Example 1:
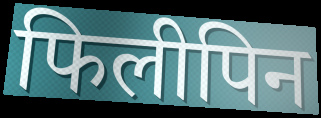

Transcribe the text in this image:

फिलीपिन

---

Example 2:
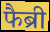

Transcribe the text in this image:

फैब्री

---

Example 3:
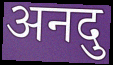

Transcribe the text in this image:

अनदु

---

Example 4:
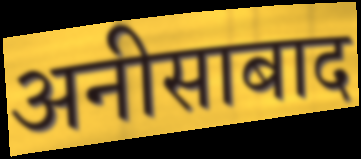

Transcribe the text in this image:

अनीसाबाद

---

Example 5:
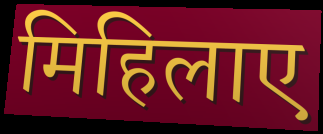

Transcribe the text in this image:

मिहिलाए